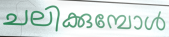
ചലിക്കുമ്പോൾ